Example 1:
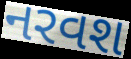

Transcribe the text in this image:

નરવશ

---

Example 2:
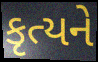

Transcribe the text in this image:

કૃત્યને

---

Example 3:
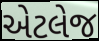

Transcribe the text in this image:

એટલેજ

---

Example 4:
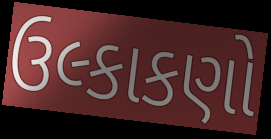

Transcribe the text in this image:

ઉલ્કાકણો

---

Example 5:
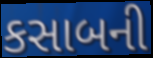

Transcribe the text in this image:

કસાબની